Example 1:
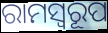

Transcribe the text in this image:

ରାମସ୍ୱରୂପ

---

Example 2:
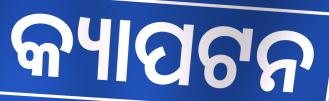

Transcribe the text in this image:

କ୍ୟାପଟନ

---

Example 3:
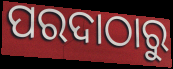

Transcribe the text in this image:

ପରଦାଠାରୁ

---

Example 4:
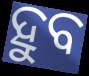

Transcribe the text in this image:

ହୁବ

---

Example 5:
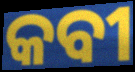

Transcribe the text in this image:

କବୀ